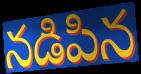
నడిపిన